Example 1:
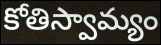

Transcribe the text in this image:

కోతిస్వామ్యం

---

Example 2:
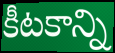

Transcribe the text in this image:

కీటకాన్ని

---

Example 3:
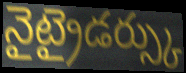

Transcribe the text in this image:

నైట్రైడర్స్కు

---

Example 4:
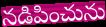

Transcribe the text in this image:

నడిపించును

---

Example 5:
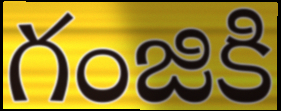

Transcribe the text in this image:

గంజికి